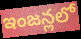
ఇంజన్లలో